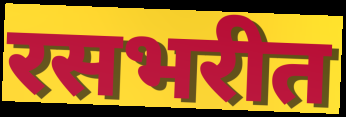
रसभरीत